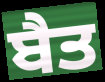
ਬੈਤ